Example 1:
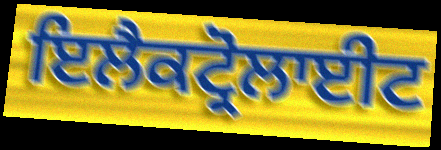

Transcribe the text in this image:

ਇਲੈਕਟ੍ਰੋਲਾਈਟ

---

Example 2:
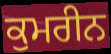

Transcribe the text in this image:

ਕੁਮਰੀਨ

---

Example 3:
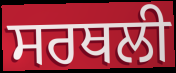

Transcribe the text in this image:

ਸਰਥਲੀ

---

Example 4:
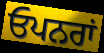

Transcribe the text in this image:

ਓਪਨਰਾਂ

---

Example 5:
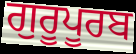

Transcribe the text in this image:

ਗੁਰੂਪੂਰਬ